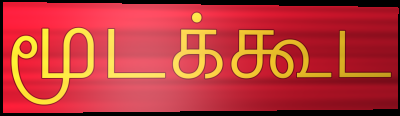
மூடக்கூட